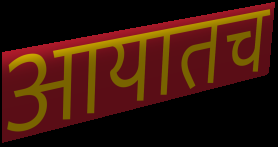
आयातच